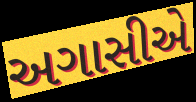
અગાસીએ